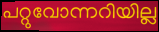
പറ്റുവോന്നറിയില്ല